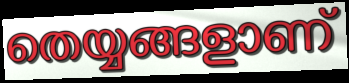
തെയ്യങ്ങളാണ്